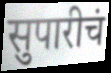
सुपारीचं